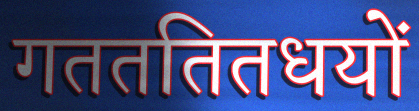
गतततितधयों